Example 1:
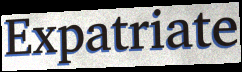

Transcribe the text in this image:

Expatriate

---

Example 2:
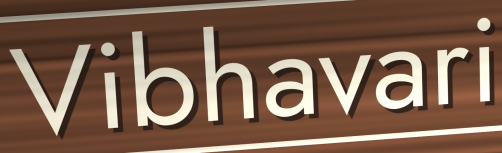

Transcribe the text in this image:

Vibhavari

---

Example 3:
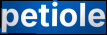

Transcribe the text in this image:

petiole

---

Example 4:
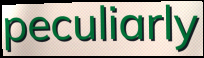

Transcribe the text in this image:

peculiarly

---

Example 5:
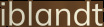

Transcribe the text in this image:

iblandt